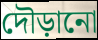
দৌড়ানো